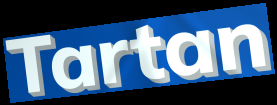
Tartan